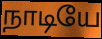
நாடியே